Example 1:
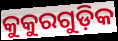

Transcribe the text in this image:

କୁକୁରଗୁଡ଼ିକ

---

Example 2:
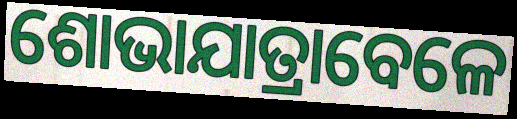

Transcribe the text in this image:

ଶୋଭାଯାତ୍ରାବେଳେ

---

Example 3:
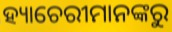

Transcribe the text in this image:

ହ୍ୟାଚେରୀମାନଙ୍କରୁ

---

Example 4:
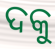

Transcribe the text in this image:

ଦକୁ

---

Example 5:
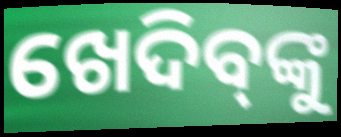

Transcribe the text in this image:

ଖେଦିବ୍‌ଙ୍କୁ